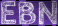
EBN